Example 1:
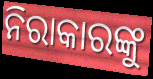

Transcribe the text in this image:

ନିରାକାରଙ୍କୁ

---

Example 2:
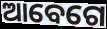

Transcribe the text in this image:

ଆବେଗେ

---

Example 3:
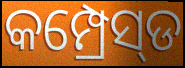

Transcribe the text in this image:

କମ୍ପ୍ରେସ୍‌ଡ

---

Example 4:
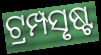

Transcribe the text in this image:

ଟ୍ରମ୍ପସୃଷ୍ଟ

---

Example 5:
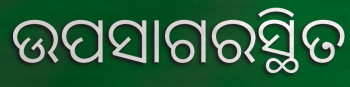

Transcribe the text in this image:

ଉପସାଗରସ୍ଥିତ